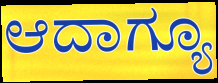
ಆದಾಗ್ಯೂ